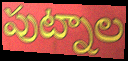
పుట్నాల